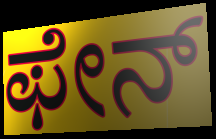
ಫೇನ್